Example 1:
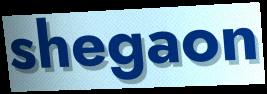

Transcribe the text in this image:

shegaon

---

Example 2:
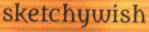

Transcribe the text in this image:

sketchywish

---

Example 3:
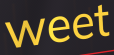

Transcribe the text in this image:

weet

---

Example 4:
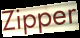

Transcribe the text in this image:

Zipper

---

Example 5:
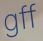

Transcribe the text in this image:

gff